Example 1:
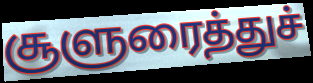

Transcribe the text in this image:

சூளுரைத்துச்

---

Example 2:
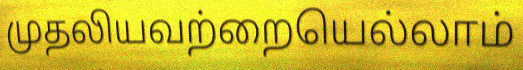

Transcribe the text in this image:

முதலியவற்றையெல்லாம்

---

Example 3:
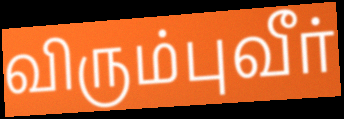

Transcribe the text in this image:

விரும்புவீர்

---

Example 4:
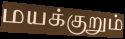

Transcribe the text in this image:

மயக்குறும்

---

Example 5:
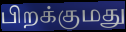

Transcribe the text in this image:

பிறக்குமது